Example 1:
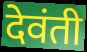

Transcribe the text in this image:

देवंती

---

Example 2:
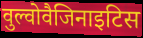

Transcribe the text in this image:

वुल्वोवैजिनाइटिस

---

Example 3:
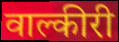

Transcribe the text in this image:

वाल्कीरी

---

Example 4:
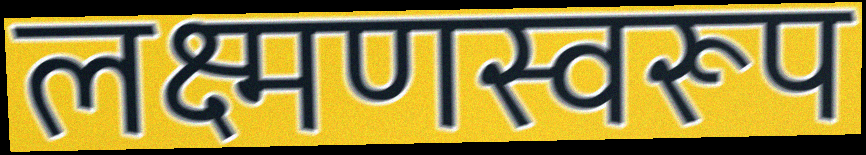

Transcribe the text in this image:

लक्ष्मणस्वरूप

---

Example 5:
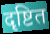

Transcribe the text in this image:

दृष्टित